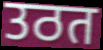
उठत